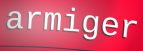
armiger